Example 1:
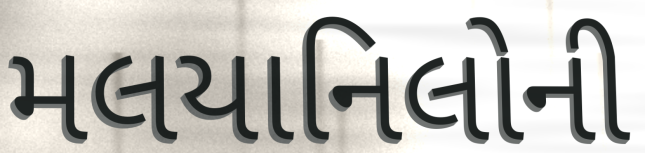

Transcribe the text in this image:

મલયાનિલોની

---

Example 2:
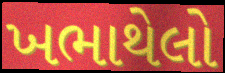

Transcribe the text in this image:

ખભાથેલો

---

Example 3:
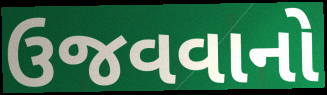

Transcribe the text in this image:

ઉજવવાનો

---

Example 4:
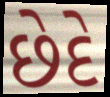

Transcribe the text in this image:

છેદે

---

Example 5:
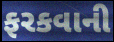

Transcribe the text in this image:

ફરકવાની